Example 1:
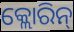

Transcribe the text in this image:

କ୍ଲୋରିନ୍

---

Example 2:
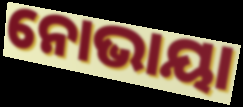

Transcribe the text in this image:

ନୋଭାୟା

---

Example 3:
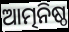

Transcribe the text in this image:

ଆତ୍ମନିଷ୍ଠ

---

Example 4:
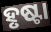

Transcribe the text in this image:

ହୃଷ୍ଟା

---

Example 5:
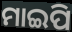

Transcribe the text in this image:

ମାଇପି